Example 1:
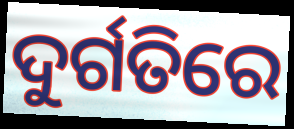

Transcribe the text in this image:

ଦୁର୍ଗତିରେ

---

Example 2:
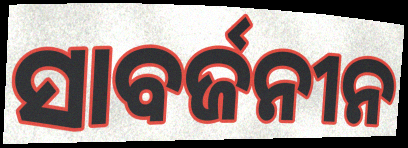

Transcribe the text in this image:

ସାବର୍ଜନୀନ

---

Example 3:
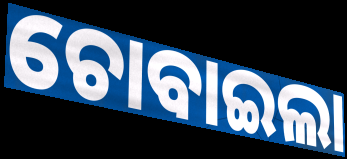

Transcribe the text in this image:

ଚୋବାଇଲା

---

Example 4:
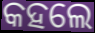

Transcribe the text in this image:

କହଲେ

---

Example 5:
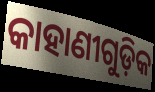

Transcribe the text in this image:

କାହାଣୀଗୁଡ଼ିକ